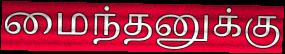
மைந்தனுக்கு